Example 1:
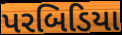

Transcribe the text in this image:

પરબિડિયા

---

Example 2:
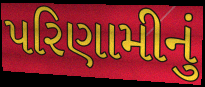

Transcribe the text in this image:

પરિણામીનું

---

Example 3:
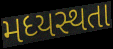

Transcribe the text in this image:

મધ્યસ્થતા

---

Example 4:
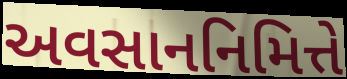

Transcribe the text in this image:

અવસાનનિમિત્તે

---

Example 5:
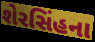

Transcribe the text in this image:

શેરસિંહના